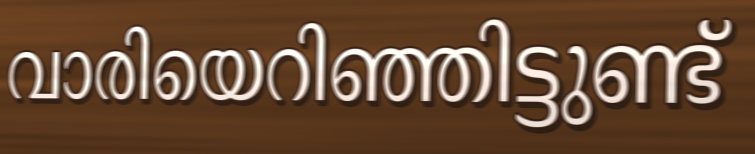
വാരിയെറിഞ്ഞിട്ടുണ്ട്